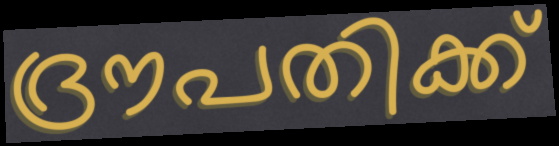
ദ്രൗപതിക്ക്